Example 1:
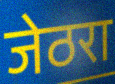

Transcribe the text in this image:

जेठरा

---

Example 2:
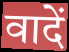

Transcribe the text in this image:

वादें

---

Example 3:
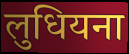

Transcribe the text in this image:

लुधियना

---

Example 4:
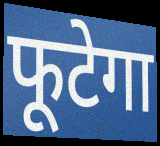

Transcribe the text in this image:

फूटेगा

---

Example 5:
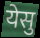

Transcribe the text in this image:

येसु